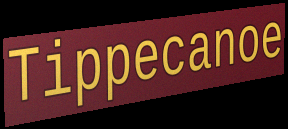
Tippecanoe